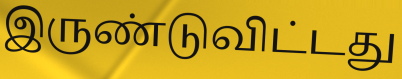
இருண்டுவிட்டது